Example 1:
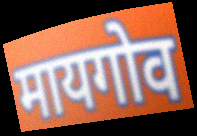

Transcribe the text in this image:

मायगोव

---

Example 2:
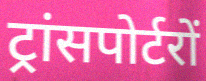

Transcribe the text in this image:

ट्रांसपोर्टरों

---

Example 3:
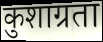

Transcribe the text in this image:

कुशाग्रता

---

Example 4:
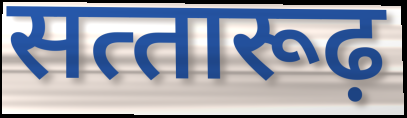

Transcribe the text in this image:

सत्‍तारूढ़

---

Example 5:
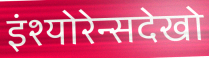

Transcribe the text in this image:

इंश्योरेन्सदेखो